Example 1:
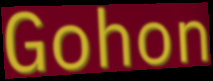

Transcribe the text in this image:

Gohon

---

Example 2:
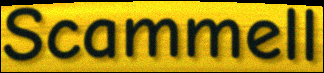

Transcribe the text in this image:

Scammell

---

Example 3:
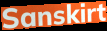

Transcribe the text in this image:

Sanskirt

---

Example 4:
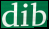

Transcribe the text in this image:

dib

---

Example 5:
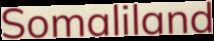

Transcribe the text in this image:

Somaliland